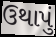
ઉથાપું